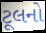
ટૂલનો